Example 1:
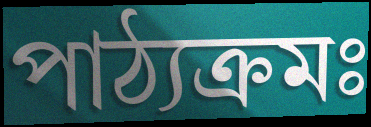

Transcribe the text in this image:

পাঠ্যক্ৰমঃ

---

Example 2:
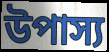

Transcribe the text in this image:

উপাস্য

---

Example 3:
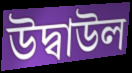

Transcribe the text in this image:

উদ্বাউল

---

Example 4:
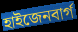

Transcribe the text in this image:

হাইজেনবাৰ্গ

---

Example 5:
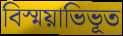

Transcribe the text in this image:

বিস্ময়াভিভূত